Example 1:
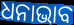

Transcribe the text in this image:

ଧନାଭାବ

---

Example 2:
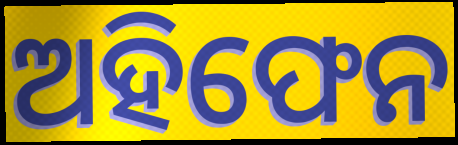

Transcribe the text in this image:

ଅହିଫେନ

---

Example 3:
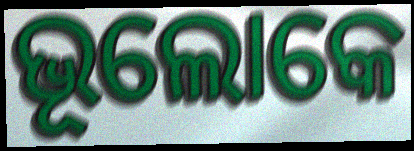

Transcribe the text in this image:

ଭୂଲୋକେ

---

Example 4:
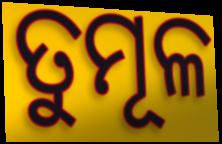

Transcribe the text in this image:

ତୁମୂଳ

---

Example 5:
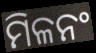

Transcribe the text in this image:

ମିଳନଂ